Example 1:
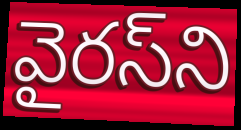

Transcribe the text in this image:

వైరస్‌ని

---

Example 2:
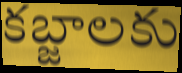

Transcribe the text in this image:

కబ్జాలకు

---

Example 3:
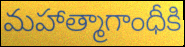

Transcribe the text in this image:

మహాత్మాగాంధీకి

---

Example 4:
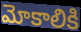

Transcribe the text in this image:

మోకాలికి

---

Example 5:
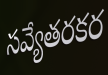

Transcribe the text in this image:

సవ్యేతరకర